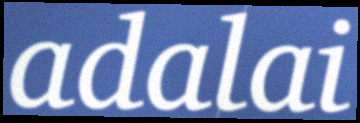
adalai